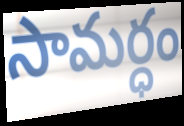
సామర్ధం